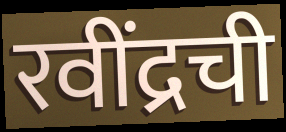
रवींद्रची